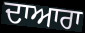
ਦਾਆਰਾ